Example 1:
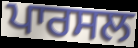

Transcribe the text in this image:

ਪਾਰਸਲ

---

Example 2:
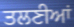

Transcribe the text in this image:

ਤਲਣੀਆਂ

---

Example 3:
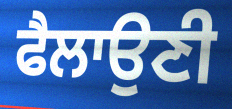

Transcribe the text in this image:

ਫੈਲਾਉਣੀ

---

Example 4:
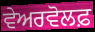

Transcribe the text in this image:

ਵੇਅਰਵੋਲਫ਼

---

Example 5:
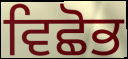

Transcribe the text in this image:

ਵਿਛੋਭ